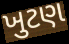
ખુટણ